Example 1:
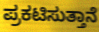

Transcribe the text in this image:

ಪ್ರಕಟಿಸುತ್ತಾನೆ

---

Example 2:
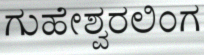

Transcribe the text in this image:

ಗುಹೇಶ್ವರಲಿಂಗ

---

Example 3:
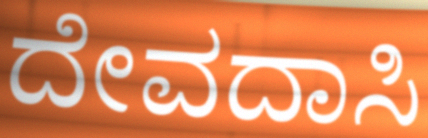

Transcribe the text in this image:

ದೇವದಾಸಿ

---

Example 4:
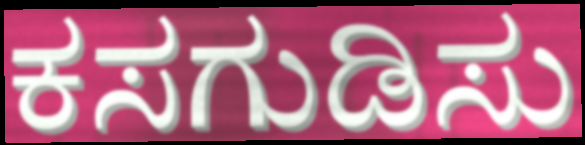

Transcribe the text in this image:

ಕಸಗುಡಿಸು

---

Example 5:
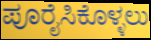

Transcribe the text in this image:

ಪೂರೈಸಿಕೊಳ್ಳಲು